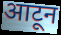
आटून